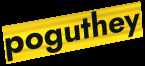
poguthey